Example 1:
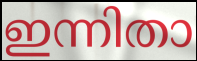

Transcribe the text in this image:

ഇന്നിതാ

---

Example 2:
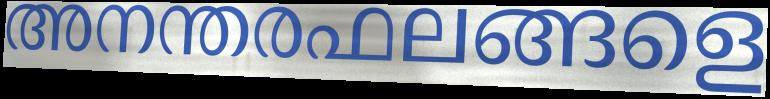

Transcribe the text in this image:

അനന്തരഫലങ്ങളെ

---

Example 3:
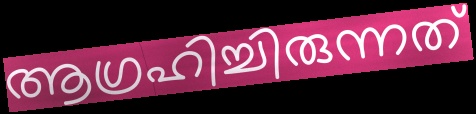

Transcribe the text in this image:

ആഗ്രഹിച്ചിരുന്നത്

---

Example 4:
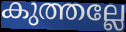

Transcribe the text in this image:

കുത്തല്ലേ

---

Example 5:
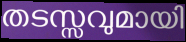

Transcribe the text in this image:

തടസ്സവുമായി